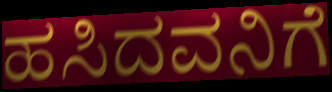
ಹಸಿದವನಿಗೆ